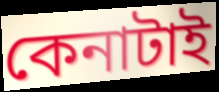
কেনাটাই